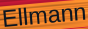
Ellmann